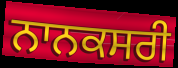
ਨਾਨਕਸਰੀ